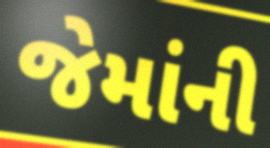
જેમાંની